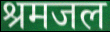
श्रमजल